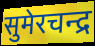
सुमेरचन्द्र